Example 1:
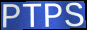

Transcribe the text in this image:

PTPS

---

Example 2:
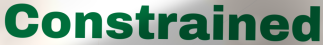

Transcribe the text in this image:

Constrained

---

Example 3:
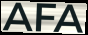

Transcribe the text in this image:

AFA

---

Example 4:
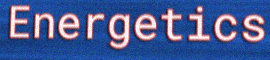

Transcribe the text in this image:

Energetics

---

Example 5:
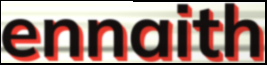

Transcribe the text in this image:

ennaith